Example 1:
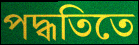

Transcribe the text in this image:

পদ্ধতিতে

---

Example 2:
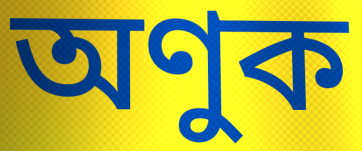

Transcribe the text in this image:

অণুক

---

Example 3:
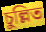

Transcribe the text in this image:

চুল্লিত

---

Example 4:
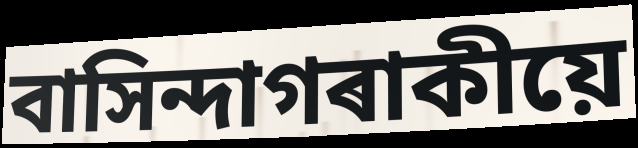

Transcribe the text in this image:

বাসিন্দাগৰাকীয়ে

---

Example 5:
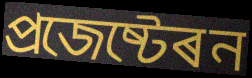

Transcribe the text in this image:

প্ৰজেষ্টেৰন